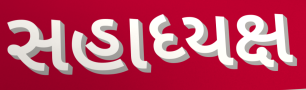
સહાધ્યક્ષ